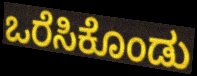
ಒರೆಸಿಕೊಂಡು